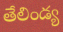
తేలిండ్య